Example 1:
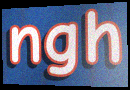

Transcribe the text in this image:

ngh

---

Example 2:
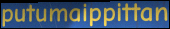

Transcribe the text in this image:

putumaippittan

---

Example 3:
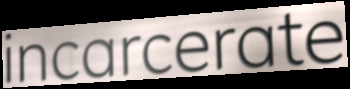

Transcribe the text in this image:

incarcerate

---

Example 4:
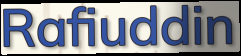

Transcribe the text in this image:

Rafiuddin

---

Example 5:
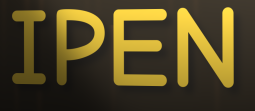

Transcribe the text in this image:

IPEN